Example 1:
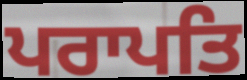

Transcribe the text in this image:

ਪਰਾਪਤਿ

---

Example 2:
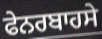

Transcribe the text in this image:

ਫੇਨਰਬਾਹਸੇ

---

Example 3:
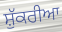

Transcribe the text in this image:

ਸ਼ੁੱਕਰੀਆ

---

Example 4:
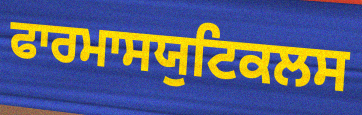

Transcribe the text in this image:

ਫਾਰਮਾਸਯੁਟਿਕਲਸ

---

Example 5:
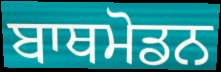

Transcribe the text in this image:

ਬਾਥਮੋਡਨ